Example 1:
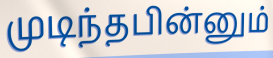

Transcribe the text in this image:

முடிந்தபின்னும்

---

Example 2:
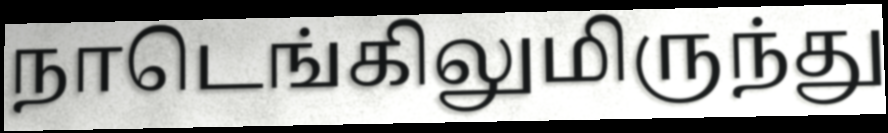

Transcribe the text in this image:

நாடெங்கிலுமிருந்து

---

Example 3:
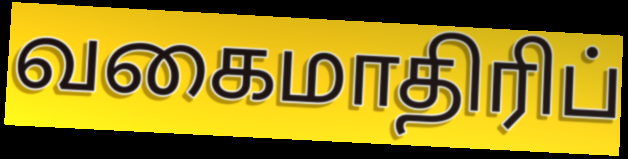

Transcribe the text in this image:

வகைமாதிரிப்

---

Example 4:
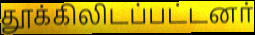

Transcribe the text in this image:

தூக்கிலிடப்பட்டனர்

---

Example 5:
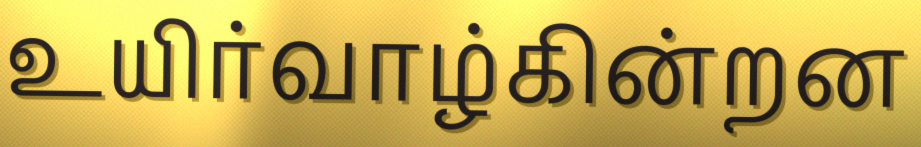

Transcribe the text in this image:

உயிர்வாழ்கின்றன